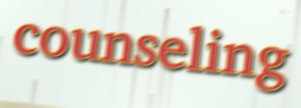
counseling